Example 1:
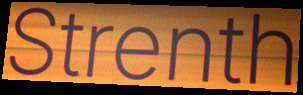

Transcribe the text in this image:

Strenth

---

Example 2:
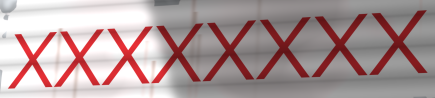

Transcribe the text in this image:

XXXXXXXX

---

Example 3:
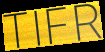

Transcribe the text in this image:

TIFR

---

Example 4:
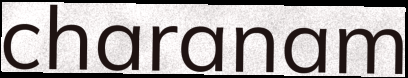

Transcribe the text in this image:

charanam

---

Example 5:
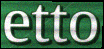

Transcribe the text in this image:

etto